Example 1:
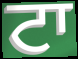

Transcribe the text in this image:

ਟਾ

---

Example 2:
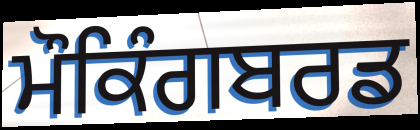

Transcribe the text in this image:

ਮੌਕਿੰਗਬਰਡ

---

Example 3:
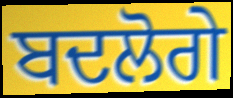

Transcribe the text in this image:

ਬਦਲੋਗੇ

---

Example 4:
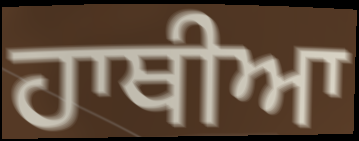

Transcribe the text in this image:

ਹਾਥੀਆ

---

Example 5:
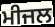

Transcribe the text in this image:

ਮੀਜਲ